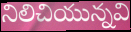
నిలిచియున్నవి